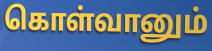
கொள்வானும்